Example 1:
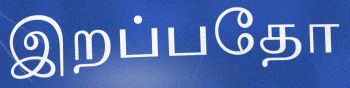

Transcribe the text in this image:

இறப்பதோ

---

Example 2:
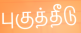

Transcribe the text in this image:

புகுத்தீடு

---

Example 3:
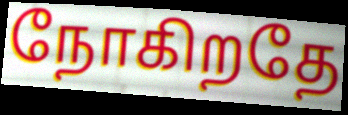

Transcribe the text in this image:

நோகிறதே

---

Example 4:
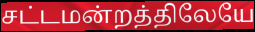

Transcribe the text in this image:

சட்டமன்றத்திலேயே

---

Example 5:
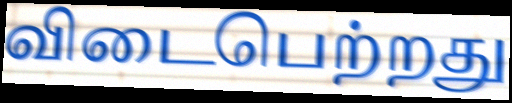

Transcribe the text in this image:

விடைபெற்றது